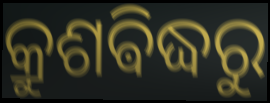
କ୍ରୁଶଵିଦ୍ଧରୁ